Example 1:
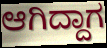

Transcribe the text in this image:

ಆಗಿದ್ದಾಗ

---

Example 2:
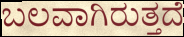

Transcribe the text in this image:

ಬಲವಾಗಿರುತ್ತದೆ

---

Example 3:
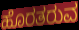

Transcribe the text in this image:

ಹೊರತರುವ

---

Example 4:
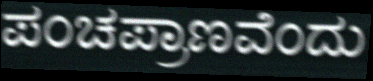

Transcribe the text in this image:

ಪಂಚಪ್ರಾಣವೆಂದು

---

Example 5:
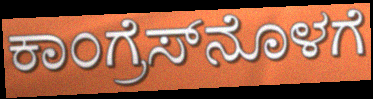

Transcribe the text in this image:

ಕಾಂಗ್ರೆಸ್‌ನೊಳಗೆ